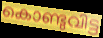
കൊണ്ടുവിട്ട